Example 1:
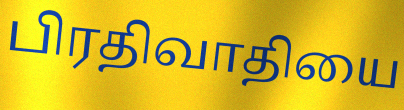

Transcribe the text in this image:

பிரதிவாதியை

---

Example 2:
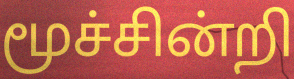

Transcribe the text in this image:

மூச்சின்றி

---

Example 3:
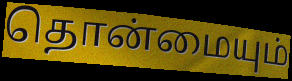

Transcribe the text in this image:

தொன்மையும்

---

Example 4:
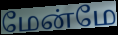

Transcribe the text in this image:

மேன்மே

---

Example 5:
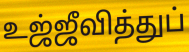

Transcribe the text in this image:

உஜ்ஜீவித்துப்